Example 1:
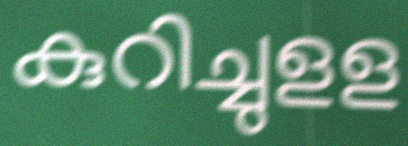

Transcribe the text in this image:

കുറിച്ചുളള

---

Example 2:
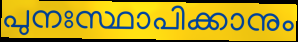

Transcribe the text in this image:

പുനഃസ്ഥാപിക്കാനും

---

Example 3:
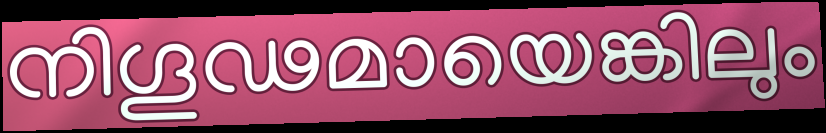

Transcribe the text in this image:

നിഗൂഢമായെങ്കിലും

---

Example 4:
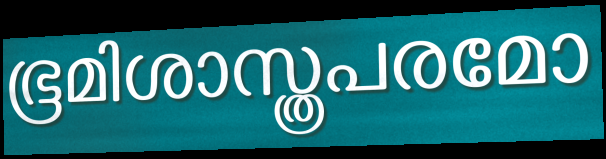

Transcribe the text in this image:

ഭൂമിശാസ്ത്രപരമോ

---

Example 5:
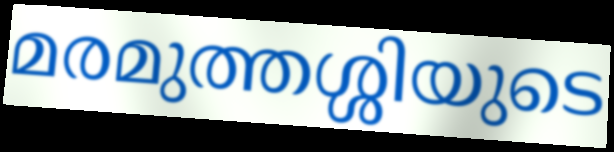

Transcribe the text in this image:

മരമുത്തശ്ശിയുടെ